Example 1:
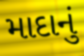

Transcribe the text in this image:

માદાનું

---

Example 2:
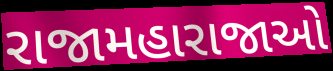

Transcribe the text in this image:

રાજામહારાજાઓ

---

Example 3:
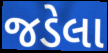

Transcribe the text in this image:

જડેલા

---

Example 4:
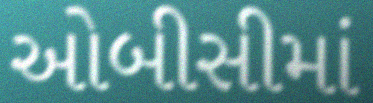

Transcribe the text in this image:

ઓબીસીમાં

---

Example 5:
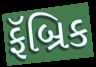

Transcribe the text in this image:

ફૅબ્રિક